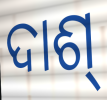
ଦାଶ୍